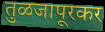
तुळजापूरकर